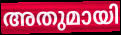
അതുമായി